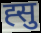
ह्सु